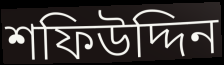
শফিউদ্দিন